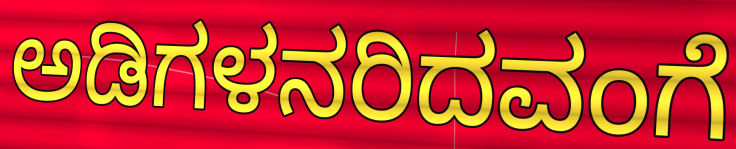
ಅಡಿಗಳನರಿದವಂಗೆ